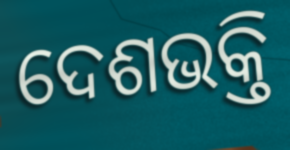
ଦେଶଭକ୍ତି